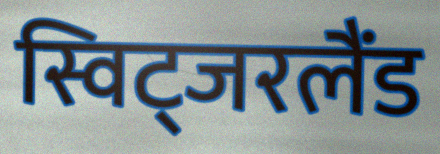
स्विट्जरलैंड